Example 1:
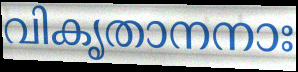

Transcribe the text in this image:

വികൃതാനനാഃ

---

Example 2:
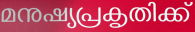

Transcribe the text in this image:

മനുഷ്യപ്രകൃതിക്ക്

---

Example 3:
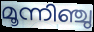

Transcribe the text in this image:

മൂന്നിഞ്ചു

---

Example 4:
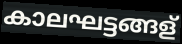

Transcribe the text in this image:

കാലഘട്ടങ്ങള്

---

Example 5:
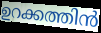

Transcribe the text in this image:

ഉറക്കത്തിൻ